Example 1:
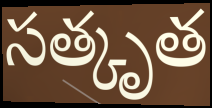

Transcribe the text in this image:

సత్కృత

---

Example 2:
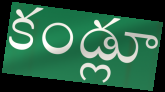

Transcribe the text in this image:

కండ్లూ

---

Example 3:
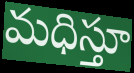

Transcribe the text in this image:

మధిస్తూ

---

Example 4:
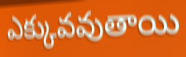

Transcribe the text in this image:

ఎక్కువవుతాయి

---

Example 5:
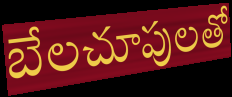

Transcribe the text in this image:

బేలచూపులతో